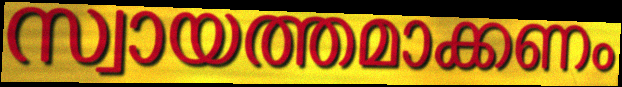
സ്വായത്തമാക്കണം